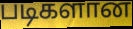
படிகளான